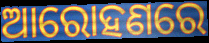
ଆରୋହଣରେ